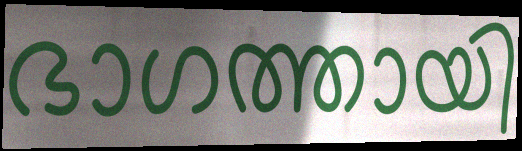
ഭാഗത്തായി